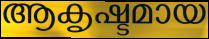
ആകൃഷ്ടമായ